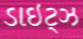
ડાઇટ્ઝ